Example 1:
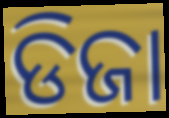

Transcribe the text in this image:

ଡିଜା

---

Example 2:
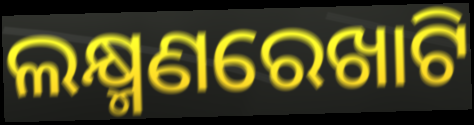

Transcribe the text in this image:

ଲକ୍ଷ୍ମଣରେଖାଟି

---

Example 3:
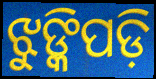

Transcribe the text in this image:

ଝୁଙ୍କିପଡ଼ି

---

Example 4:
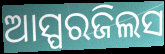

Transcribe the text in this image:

ଆସ୍ପରଜିଲସ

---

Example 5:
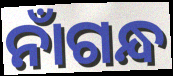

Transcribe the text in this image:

ନାଁଗନ୍ଧ